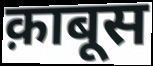
क़ाबूस